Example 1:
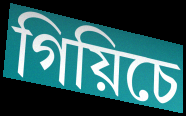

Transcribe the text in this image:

গিয়িচে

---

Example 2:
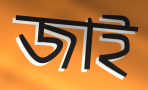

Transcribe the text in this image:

জাই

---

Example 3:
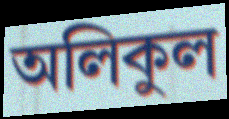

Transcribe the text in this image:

অলিকুল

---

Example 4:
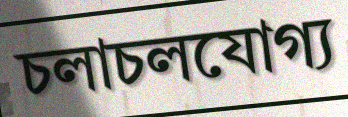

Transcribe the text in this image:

চলাচলযোগ্য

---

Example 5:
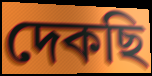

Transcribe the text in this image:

দেকছি